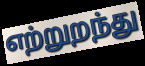
எற்றுறந்து